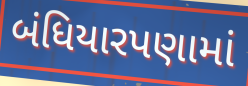
બંધિયારપણામાં